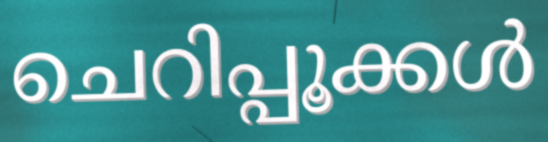
ചെറിപ്പൂക്കൾ